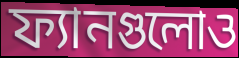
ফ্যানগুলোও